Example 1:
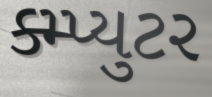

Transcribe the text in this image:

ક્મ્પ્યુટર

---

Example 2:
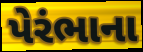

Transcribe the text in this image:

પેરંભાના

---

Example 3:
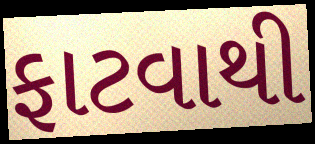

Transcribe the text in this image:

ફાટવાથી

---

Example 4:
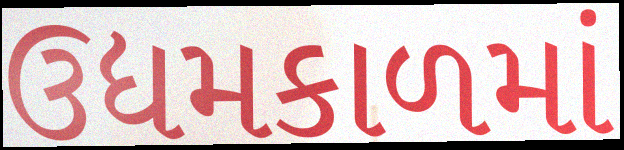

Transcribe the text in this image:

ઉદ્યમકાળમાં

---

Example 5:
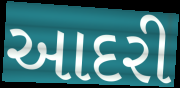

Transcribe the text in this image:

આદરી